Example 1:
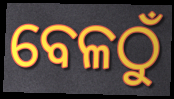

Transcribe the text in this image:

ବେଳଠୁଁ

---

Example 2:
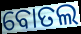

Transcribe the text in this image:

ବୋତଲ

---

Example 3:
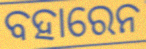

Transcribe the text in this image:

ବହାରେନ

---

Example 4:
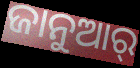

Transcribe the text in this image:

ଜାନୁଆର୍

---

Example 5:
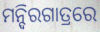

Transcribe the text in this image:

ମନ୍ଦିରଗାତ୍ରରେ